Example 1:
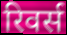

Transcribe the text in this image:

रिवर्स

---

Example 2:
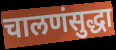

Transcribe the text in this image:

चालणंसुद्धा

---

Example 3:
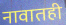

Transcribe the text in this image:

नावातही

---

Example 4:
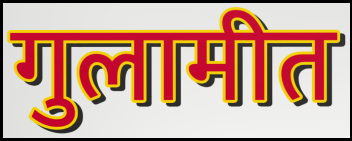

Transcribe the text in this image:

गुलामीत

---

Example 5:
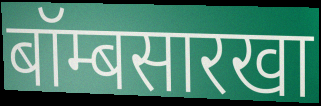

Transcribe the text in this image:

बॉम्बसारखा